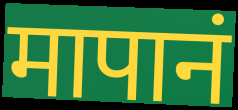
मापानं